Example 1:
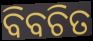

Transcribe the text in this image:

ବିବଚିତ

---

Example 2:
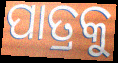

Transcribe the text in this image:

ପାତ୍ରକୁ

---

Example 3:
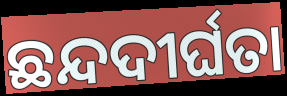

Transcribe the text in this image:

ଛନ୍ଦଦୀର୍ଘତା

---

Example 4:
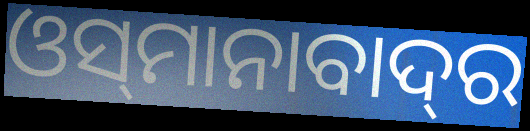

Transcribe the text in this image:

ଓସ୍‌ମାନାବାଦ୍‌ର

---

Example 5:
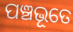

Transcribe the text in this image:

ପଞ୍ଚଭୂତେ